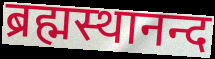
ब्रह्मस्थानन्द